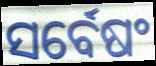
ସର୍ବେଷଂ